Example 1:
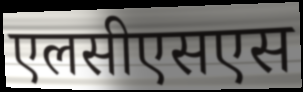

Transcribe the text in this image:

एलसीएसएस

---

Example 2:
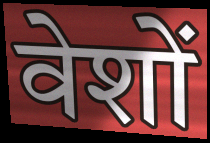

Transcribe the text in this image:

वेशों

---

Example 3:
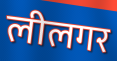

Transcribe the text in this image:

लीलगर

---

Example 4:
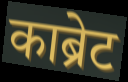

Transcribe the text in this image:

काब्रेट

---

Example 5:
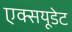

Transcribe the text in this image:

एक्सयूडेट